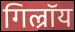
गिल्रॉय